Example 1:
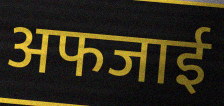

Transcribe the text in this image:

अफजाई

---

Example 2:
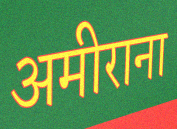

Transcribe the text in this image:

अमीराना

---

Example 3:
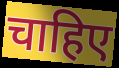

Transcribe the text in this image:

चाहिए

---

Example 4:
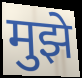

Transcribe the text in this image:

मुझे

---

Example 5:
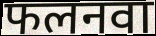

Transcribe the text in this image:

फलनवा